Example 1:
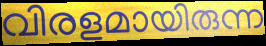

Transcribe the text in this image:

വിരളമായിരുന്ന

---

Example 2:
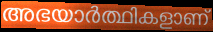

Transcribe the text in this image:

അഭയാർത്ഥികളാണ്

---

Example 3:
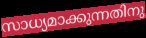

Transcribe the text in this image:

സാധ്യമാക്കുന്നതിനു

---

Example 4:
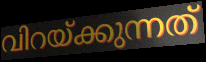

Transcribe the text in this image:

വിറയ്ക്കുന്നത്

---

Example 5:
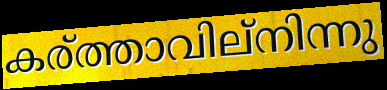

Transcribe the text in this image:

കര്ത്താവില്നിന്നു